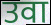
उवा